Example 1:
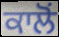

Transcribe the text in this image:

ਕਾਲੋਂ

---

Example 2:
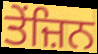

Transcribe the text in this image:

ਤੇਂਜ਼ਿਨ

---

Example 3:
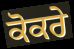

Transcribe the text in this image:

ਕੋਕਰੇ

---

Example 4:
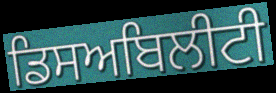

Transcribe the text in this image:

ਡਿਸਅਬਿਲੀਟੀ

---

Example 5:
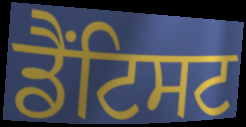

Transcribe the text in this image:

ਡੈਂਟਿਸਟ